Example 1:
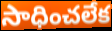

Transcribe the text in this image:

సాధించలేక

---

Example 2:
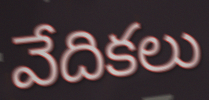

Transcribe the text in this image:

వేదికలు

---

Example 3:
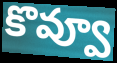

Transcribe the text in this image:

కొవ్వూ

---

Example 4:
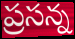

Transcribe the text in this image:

ప్రసన్న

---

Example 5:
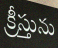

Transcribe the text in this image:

క్రీస్తును